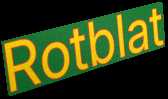
Rotblat